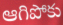
ఆగిపోకు